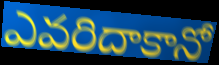
ఎవరిదాకానో